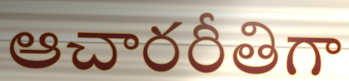
ఆచారరీతిగా